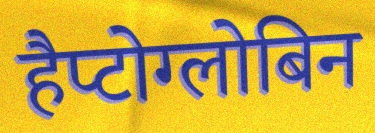
हैप्टोग्लोबिन